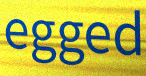
egged